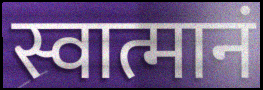
स्वात्मानं